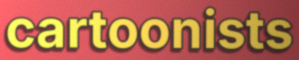
cartoonists